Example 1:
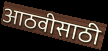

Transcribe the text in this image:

आठवीसाठी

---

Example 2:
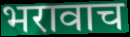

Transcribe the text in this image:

भरावाच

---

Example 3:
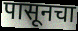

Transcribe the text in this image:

पासूनचा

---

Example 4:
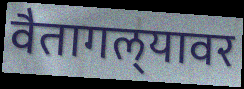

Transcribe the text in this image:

वैतागल्यावर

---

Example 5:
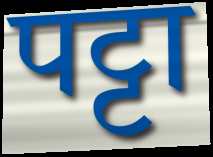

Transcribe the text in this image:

पट्टा